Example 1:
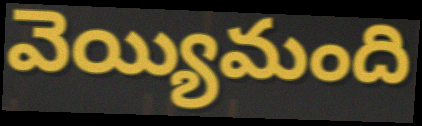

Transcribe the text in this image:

వెయ్యిమంది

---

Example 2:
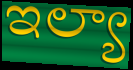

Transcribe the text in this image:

ఇల్యా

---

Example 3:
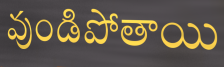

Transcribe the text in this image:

వుండిపోతాయి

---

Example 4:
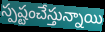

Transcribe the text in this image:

స్పష్టంచేస్తున్నాయి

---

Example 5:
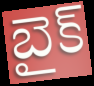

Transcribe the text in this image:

బైక్